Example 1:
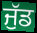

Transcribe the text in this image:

ਜੁੱਡ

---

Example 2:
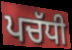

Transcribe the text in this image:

ਪਚੱਧੀ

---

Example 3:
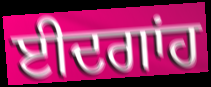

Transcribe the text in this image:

ਈਦਗਾਂਹ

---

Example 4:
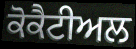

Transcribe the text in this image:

ਕੋਕੈਟੀਅਲ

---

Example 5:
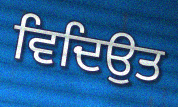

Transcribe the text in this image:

ਵਿਦਿਉਤ